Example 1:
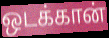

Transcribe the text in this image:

ஒடக்கான்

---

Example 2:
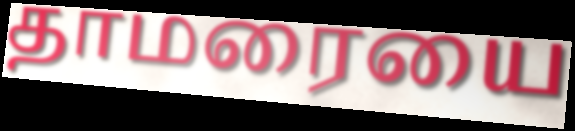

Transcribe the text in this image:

தாமரையை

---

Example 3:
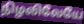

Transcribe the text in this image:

நிழலிலேயே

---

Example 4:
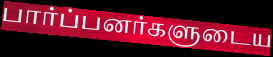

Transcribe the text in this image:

பார்ப்பனர்களுடைய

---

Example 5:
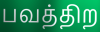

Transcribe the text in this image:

பவத்திற